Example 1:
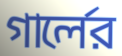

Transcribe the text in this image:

গার্লের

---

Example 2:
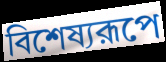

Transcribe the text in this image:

বিশেষ্যরূপে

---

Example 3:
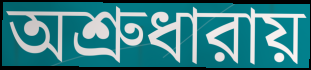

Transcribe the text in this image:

অশ্রুধারায়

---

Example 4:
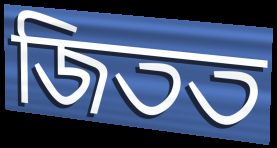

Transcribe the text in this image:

জিতত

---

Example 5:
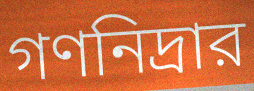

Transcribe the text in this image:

গণনিদ্রার